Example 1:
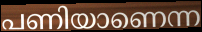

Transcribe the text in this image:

പണിയാണെന്ന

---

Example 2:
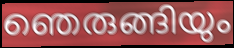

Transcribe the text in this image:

ഞെരുങ്ങിയും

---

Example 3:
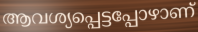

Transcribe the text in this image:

ആവശ്യപ്പെട്ടപ്പോഴാണ്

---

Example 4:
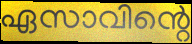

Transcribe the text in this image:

ഏസാവിന്റെ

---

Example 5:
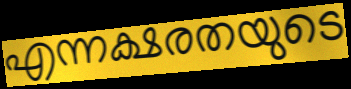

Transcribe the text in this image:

എന്നക്ഷരതയുടെ